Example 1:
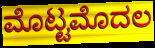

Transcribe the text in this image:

ಮೊಟ್ಟಮೊದಲ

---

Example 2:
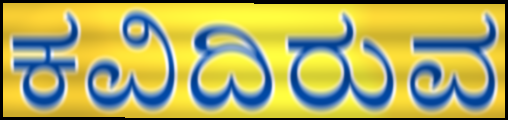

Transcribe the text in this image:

ಕವಿದಿರುವ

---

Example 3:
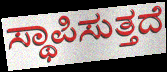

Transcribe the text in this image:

ಸ್ಥಾಪಿಸುತ್ತದೆ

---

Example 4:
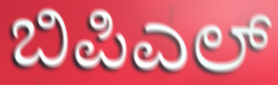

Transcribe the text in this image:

ಬಿಪಿಎಲ್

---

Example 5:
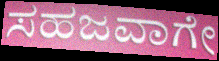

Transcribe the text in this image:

ಸಹಜವಾಗೇ